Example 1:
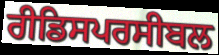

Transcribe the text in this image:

ਰੀਡਿਸਪਰਸੀਬਲ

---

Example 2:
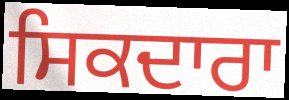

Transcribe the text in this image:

ਸਿਕਦਾਰਾ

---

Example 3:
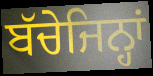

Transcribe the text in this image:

ਬੱਚੇਜਿਨ੍ਹਾਂ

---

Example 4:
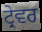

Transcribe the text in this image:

ਟ੍ਰੇਵਰ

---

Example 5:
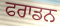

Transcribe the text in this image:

ਫਰਾਡਨ